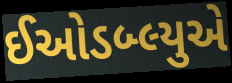
ઈઓડબ્લ્યુએ